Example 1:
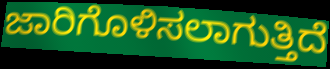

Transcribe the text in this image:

ಜಾರಿಗೊಳಿಸಲಾಗುತ್ತಿದೆ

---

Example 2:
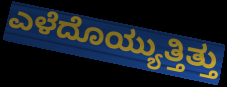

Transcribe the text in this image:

ಎಳೆದೊಯ್ಯುತ್ತಿತ್ತು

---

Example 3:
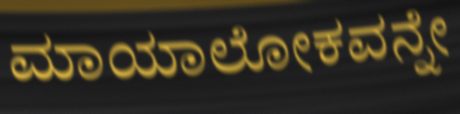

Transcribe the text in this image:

ಮಾಯಾಲೋಕವನ್ನೇ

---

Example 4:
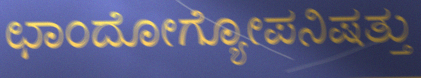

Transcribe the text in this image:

ಛಾಂದೋಗ್ಯೋಪನಿಷತ್ತು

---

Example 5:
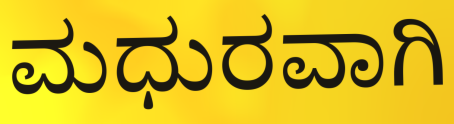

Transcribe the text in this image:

ಮಧುರವಾಗಿ